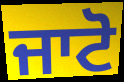
ਜਾਟੋ